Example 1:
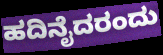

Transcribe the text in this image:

ಹದಿನೈದರಂದು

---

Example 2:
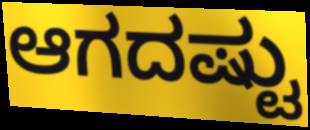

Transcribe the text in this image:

ಆಗದಷ್ಟು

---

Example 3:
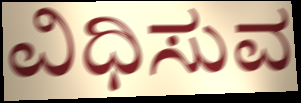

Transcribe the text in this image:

ವಿಧಿಸುವ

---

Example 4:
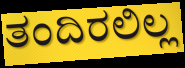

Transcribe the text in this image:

ತಂದಿರಲಿಲ್ಲ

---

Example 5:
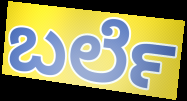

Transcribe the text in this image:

ಬರ್ಲೆ